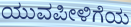
ಯುವಪೀಳಿಗೆಯ